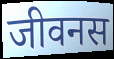
जीवनस